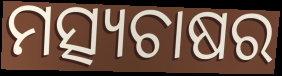
ମତ୍ସ୍ୟଚାଷର